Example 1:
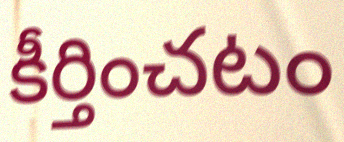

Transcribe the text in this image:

కీర్తించటం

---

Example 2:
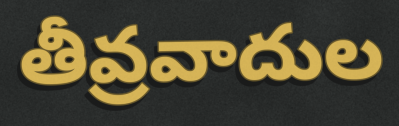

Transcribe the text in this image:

తీవ్రవాదుల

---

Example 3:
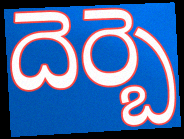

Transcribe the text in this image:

దెర్బె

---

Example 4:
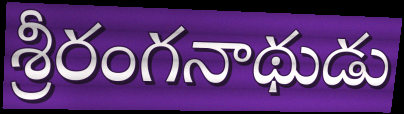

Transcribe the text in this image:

శ్రీరంగనాథుడు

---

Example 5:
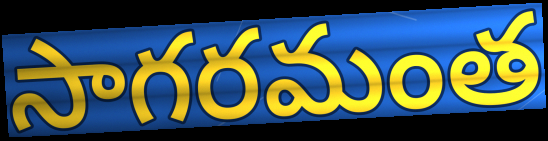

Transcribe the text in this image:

సాగరమంత